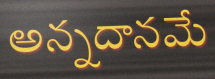
అన్నదానమే